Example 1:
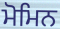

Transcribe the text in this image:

ਮੋਮਿਨ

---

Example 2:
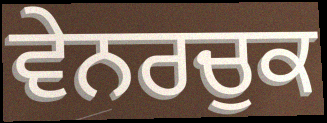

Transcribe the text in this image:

ਵੇਨਰਚੁਕ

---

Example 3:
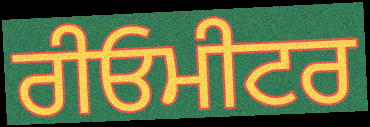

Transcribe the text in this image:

ਰੀਓਮੀਟਰ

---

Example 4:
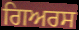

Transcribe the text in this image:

ਗਿਅਰਸ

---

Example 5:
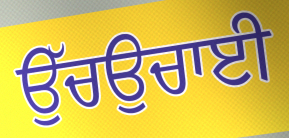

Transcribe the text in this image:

ਉੱਚਉਚਾਈ